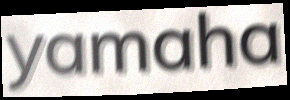
yamaha